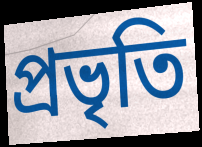
প্ৰভৃতি